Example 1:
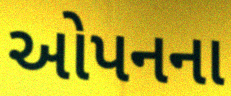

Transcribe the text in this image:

ઓપનના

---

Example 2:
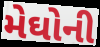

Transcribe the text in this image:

મેઘોની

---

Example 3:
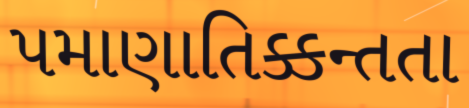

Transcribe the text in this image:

પમાણાતિક્કન્તતા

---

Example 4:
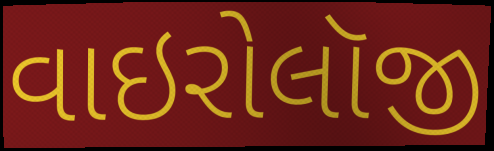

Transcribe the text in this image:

વાઇરોલૉજી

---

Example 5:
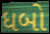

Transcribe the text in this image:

ધબો